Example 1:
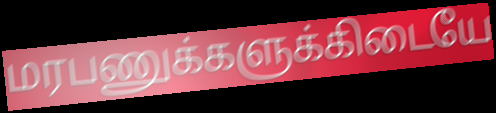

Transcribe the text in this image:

மரபணுக்களுக்கிடையே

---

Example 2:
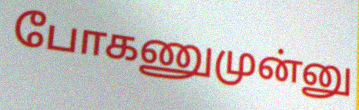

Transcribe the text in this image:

போகணுமுன்னு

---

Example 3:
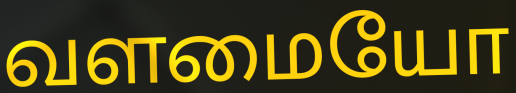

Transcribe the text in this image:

வளமையோ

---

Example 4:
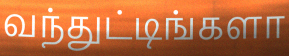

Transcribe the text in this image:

வந்துட்டிங்களா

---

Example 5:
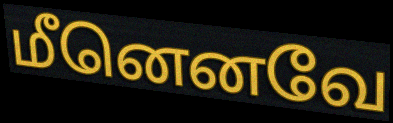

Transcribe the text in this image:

மீனெனவே